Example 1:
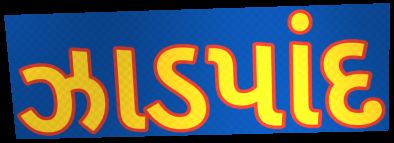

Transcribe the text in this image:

ઝાડપાંદ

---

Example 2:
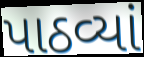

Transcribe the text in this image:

પાઠવ્યાં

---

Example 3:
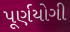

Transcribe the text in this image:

પૂર્ણયોગી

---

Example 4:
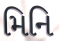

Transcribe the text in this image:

મિનિ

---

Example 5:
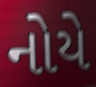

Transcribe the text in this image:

નોયે